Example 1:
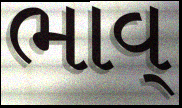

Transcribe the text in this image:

ભાવ્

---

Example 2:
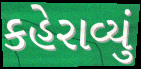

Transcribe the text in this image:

કહેરાવ્યું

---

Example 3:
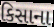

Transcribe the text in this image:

કિસાના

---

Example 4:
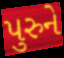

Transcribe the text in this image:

પુરુને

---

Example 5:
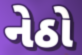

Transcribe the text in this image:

નેઠો